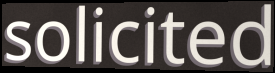
solicited